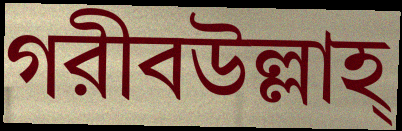
গরীবউল্লাহ্